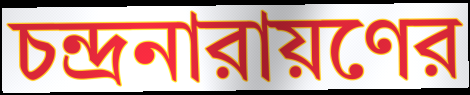
চন্দ্রনারায়ণের